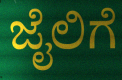
ಜೈಲಿಗೆ